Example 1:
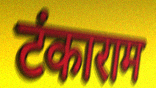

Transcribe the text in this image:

टंकाराम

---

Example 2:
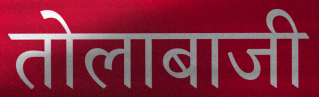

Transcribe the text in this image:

तोलाबाजी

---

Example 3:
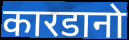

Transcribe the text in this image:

कारडानो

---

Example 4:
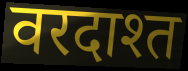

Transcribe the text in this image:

वरदाश्त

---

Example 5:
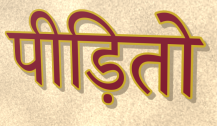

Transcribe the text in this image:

पीड़ितो